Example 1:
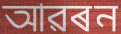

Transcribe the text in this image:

আৱৰন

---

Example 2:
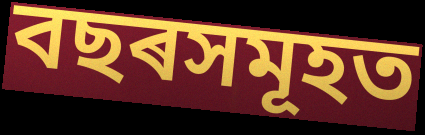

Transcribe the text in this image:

বছৰসমূহত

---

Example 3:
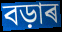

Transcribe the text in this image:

বড়াৰ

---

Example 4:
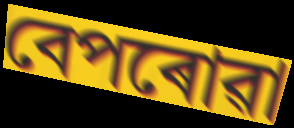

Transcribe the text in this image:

বেপৰোৱা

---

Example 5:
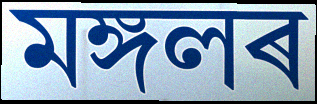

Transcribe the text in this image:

মঙ্গলৰ